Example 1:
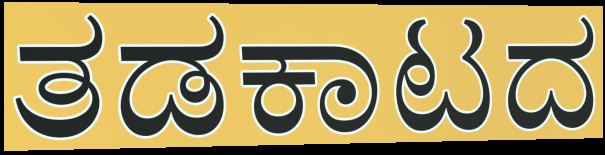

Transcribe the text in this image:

ತಡಕಾಟದ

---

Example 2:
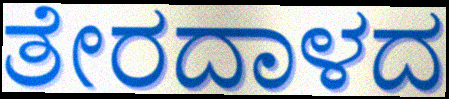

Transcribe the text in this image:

ತೇರದಾಳದ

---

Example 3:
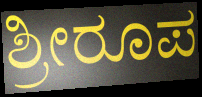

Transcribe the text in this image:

ಶ್ರೀರೂಪ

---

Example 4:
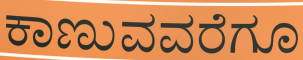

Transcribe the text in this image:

ಕಾಣುವವರೆಗೂ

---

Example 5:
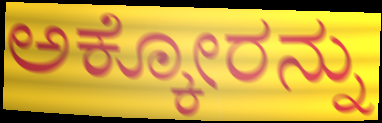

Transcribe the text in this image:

ಅಕ್ಕೋರನ್ನು